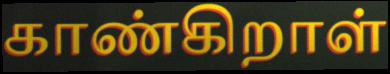
காண்கிறாள்